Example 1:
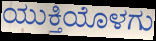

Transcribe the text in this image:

ಯುಕ್ತಿಯೊಳಗು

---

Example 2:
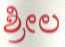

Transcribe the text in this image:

ಶ್ರೀಲ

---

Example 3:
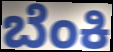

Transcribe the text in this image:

ಬೆಂಕಿ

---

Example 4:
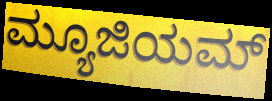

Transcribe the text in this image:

ಮ್ಯೂಜಿಯಮ್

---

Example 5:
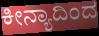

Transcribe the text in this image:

ಕೀನ್ಯಾದಿಂದ